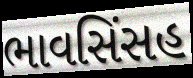
ભાવસિંસહ